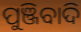
ପୁଞ୍ଜିବାଦି